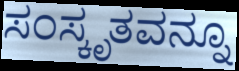
ಸಂಸ್ಕೃತವನ್ನೂ